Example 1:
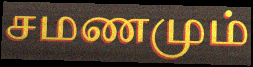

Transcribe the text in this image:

சமணமும்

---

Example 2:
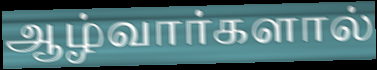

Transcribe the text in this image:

ஆழ்வார்களால்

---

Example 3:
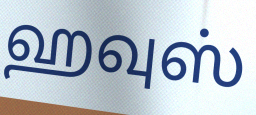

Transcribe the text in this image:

ஹவுஸ்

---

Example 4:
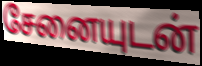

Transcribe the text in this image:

சேனையுடன்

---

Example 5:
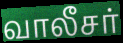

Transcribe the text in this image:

வாலீசர்